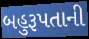
બહુરૂપતાની